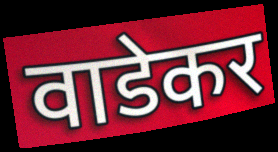
वाडेकर